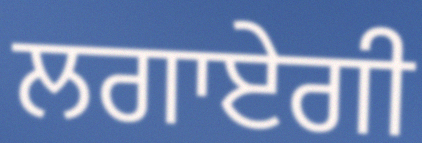
ਲਗਾਏਗੀ